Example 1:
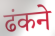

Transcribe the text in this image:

ढंकने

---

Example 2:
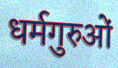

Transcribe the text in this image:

धर्मगुरुओं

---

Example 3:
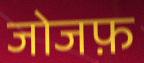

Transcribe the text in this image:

जोजफ़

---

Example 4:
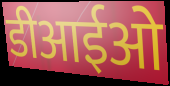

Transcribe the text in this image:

डीआईओ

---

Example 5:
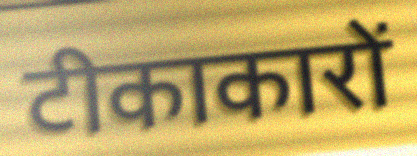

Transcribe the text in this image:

टीकाकारों